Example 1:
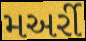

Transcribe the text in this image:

મઅર્રી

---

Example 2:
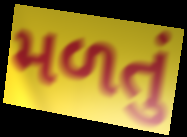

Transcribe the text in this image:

મળતું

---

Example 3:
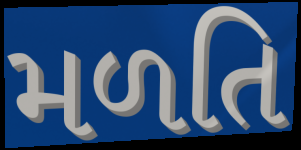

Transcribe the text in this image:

મળતિ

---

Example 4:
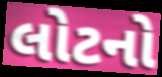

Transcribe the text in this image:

લોટનો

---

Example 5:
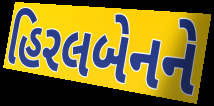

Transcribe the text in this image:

હિરલબેનને